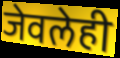
जेवलेही